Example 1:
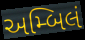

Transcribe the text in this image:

અમ્બિલં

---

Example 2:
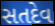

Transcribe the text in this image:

સતદેવ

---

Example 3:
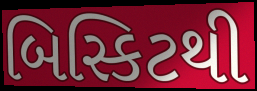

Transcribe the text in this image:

બિસ્કિટથી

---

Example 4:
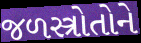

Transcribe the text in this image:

જળસ્ત્રોતોને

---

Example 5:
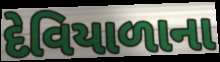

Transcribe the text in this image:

દેવિયાળાના